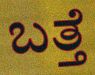
ಬತ್ತೆ